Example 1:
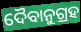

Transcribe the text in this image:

ଦୈବାନୁଗ୍ରହ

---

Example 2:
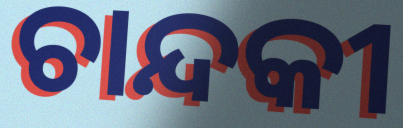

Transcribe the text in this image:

ଚାନ୍ଦକୀ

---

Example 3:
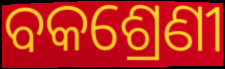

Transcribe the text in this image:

ବକଶ୍ରେଣୀ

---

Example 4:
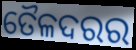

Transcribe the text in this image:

ତୈଳଦରର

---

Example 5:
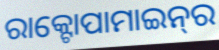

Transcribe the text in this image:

ରାକ୍ଟୋପାମାଇନ୍‌ର